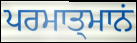
ਪਰਮਾਤ੍ਮਾਨਂ